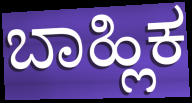
ಬಾಹ್ಲಿಕ